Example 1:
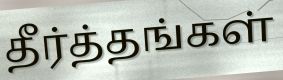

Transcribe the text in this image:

தீர்த்தங்கள்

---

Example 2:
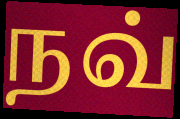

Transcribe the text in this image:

நவ்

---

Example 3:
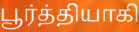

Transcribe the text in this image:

பூர்த்தியாகி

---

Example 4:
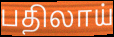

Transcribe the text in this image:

பதிலாய்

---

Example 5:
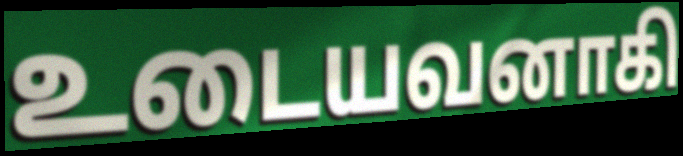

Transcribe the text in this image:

உடையவனாகி